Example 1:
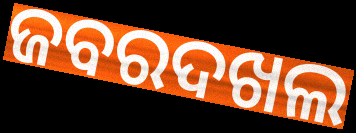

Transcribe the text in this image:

ଜବରଦଖଲ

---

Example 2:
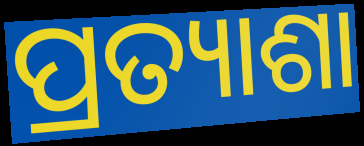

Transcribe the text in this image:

ପ୍ରତ୍ୟାଶା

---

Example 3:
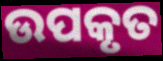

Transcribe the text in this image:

ଉପକୃତ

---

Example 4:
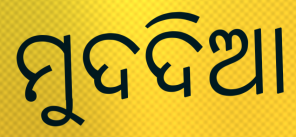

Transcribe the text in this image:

ମୁଦଦିଆ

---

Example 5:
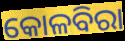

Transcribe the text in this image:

କୋଳବିରା